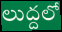
లుద్దలో